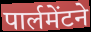
पार्लमेंटने